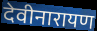
देवीनारायण